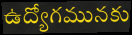
ఉద్యోగమునకు